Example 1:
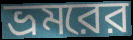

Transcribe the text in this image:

ভ্রমরের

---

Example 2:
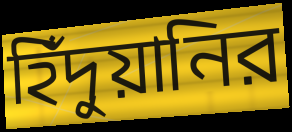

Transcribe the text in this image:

হিঁদুয়ানির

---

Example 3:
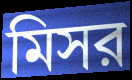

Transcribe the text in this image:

মিসর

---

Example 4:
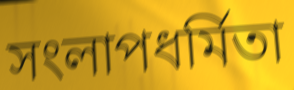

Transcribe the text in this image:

সংলাপধর্মিতা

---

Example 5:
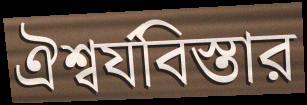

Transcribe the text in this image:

ঐশ্বর্যবিস্তার